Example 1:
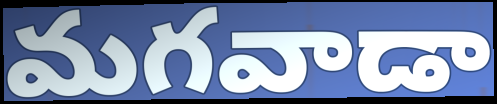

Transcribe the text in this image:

మగవాడా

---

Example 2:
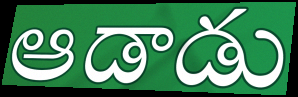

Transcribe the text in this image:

ఆడాడు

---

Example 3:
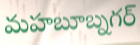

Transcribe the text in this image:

మహబూబ్నగర్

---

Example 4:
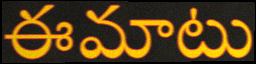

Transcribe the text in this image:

ఈమాటు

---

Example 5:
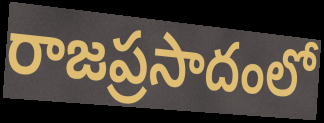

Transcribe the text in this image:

రాజప్రసాదంలో